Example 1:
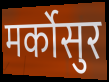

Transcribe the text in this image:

मर्कोसुर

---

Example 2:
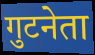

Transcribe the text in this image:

गुटनेता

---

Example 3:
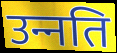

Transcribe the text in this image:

उन्‍नति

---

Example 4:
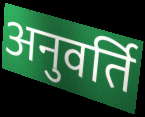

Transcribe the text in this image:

अनुवर्ति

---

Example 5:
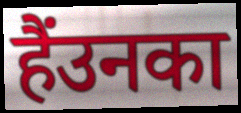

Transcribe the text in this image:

हैंउनका